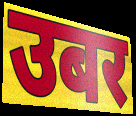
उबर